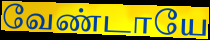
வேண்டாயே